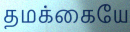
தமக்கையே